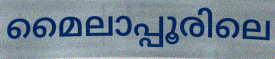
മൈലാപ്പൂരിലെ